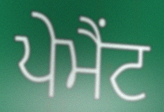
ਪੇਮੈਂਟ